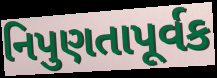
નિપુણતાપૂર્વક